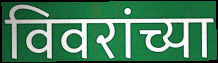
विवरांच्या